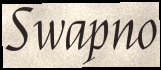
Swapno